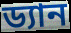
ড্যান